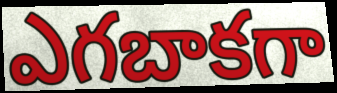
ఎగబాకగా